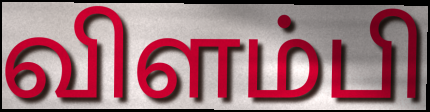
விளம்பி